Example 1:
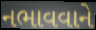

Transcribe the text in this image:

નભાવવાને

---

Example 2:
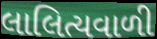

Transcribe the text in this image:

લાલિત્યવાળી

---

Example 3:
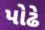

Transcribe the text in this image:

પોઢે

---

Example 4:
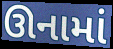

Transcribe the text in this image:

ઊનામાં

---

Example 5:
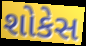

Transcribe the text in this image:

શોકેસ